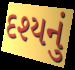
દશ્યનું